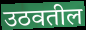
उठवतील